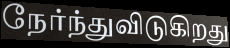
நேர்ந்துவிடுகிறது